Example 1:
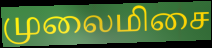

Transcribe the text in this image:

முலைமிசை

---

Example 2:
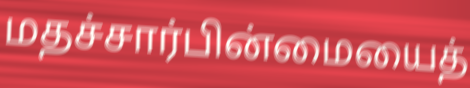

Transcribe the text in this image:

மதச்சார்பின்மையைத்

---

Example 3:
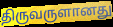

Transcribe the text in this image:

திருவருளானது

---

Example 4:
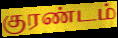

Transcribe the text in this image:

குரண்டம்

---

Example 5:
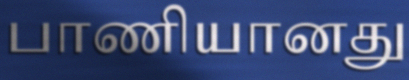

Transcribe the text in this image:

பாணியானது